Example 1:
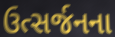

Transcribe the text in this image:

ઉત્સર્જનના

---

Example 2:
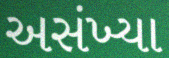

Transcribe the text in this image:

અસંખ્યા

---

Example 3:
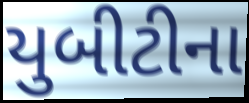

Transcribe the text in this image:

યુબીટીના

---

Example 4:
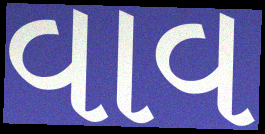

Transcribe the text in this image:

વાવ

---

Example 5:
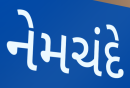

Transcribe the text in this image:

નેમચંદે